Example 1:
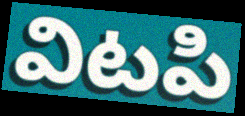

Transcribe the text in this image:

విటపి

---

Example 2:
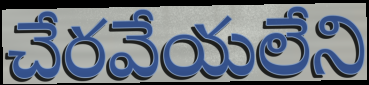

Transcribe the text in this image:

చేరవేయలేని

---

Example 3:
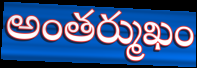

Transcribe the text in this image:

అంతర్ముఖం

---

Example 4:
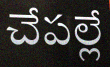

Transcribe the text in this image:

చేపల్లే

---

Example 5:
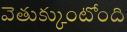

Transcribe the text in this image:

వెతుక్కుంటోంది